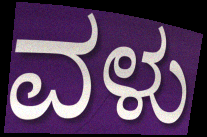
ವಳು